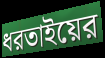
ধরতাইয়ের